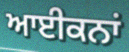
ਆਈਕਨਾਂ